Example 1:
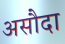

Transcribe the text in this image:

असौदा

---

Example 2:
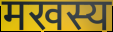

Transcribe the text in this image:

मखस्य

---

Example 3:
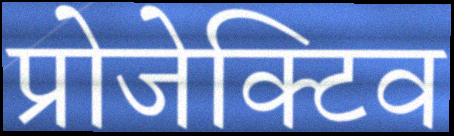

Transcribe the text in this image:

प्रोजेक्टिव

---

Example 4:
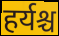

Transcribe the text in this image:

हर्यश्च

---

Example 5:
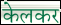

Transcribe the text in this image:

केलकर